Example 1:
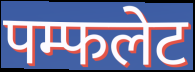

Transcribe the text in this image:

पम्फलेट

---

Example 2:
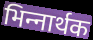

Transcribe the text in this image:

भिन्नार्थक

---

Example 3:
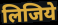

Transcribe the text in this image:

लिजिये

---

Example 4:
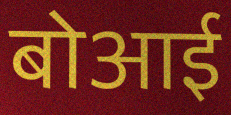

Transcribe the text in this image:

बोआई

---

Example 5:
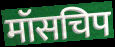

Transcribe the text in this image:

मॉसचिप